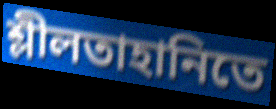
শ্লীলতাহানিতে